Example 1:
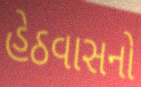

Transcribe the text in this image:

હેઠવાસનો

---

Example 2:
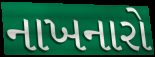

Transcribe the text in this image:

નાખનારો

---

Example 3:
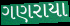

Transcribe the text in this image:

ગણરાયા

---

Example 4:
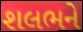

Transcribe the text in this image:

શલભને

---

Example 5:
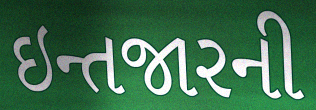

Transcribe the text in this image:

ઇન્તજારની